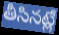
తీసినట్లే